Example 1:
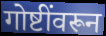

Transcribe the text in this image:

गोष्टींवरून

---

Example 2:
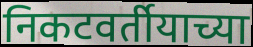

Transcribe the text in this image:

निकटवर्तीयाच्या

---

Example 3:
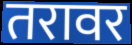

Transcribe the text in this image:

तरावर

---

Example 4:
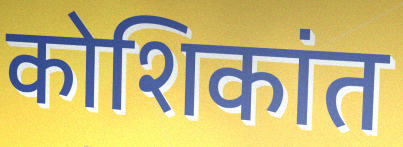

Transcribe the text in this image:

कोशिकांत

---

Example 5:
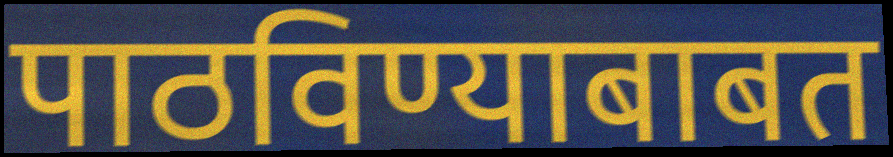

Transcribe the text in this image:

पाठविण्याबाबत